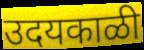
उदयकाळी